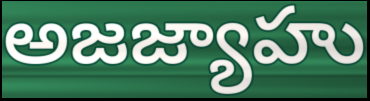
అజజ్యాహు